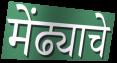
मेंढ्याचे